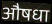
औषधा